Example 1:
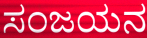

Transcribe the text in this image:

ಸಂಜಯನ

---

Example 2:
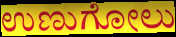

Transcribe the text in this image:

ಉಣುಗೋಲು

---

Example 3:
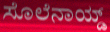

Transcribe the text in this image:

ಸೊಲೆನಾಯ್ಡ್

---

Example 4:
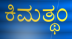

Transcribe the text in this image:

ಕಿಮತ್ಥಂ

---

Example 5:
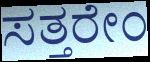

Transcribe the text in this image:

ಸತ್ತರೇಂ